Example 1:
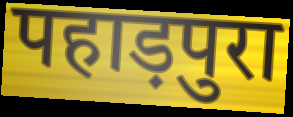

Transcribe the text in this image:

पहाड़पुरा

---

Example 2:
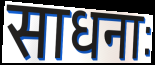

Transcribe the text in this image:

साधनाः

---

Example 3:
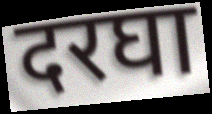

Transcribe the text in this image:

दरघा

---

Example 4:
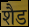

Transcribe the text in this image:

शैड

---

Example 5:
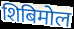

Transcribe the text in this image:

शिबिमोल